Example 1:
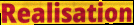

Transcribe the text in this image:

Realisation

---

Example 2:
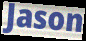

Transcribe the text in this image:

Jason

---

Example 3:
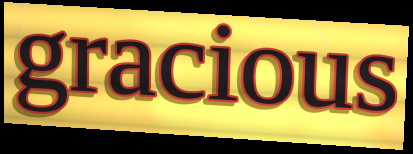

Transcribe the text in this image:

gracious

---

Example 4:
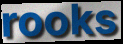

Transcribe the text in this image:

rooks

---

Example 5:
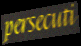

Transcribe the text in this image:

persecuti